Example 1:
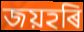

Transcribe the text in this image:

জয়হৰি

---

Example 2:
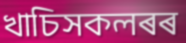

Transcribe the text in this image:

খাচিসকলৰৰ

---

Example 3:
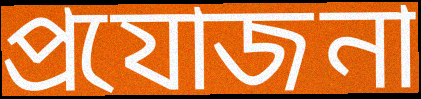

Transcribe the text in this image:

প্ৰযোজনা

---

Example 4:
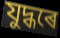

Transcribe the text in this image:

যুদ্ধৰে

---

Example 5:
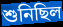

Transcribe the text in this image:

শুনিছিল